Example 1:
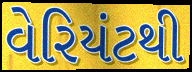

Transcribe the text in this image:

વેરિયંટથી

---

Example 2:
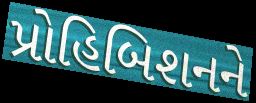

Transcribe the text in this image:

પ્રોહિબિશનને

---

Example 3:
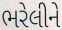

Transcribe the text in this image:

ભરેલીને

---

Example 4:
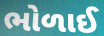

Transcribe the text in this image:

ભોળાઈ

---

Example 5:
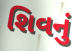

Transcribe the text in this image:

શિવનું